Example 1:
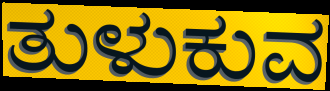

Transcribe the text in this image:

ತುಳುಕುವ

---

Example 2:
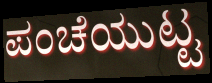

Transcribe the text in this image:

ಪಂಚೆಯುಟ್ಟ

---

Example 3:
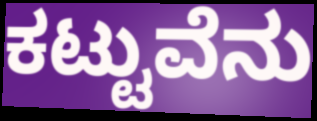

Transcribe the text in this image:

ಕಟ್ಟುವೆನು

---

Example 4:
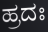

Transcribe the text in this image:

ಹ್ರದಃ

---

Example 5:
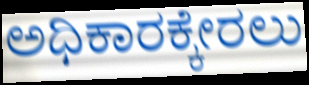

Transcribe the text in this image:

ಅಧಿಕಾರಕ್ಕೇರಲು